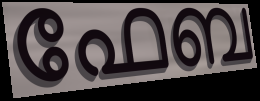
ഫേബ